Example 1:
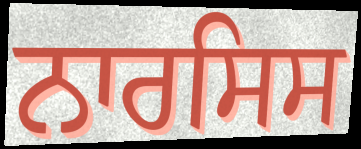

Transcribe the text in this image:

ਨਾਰਸਿਸ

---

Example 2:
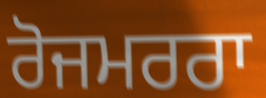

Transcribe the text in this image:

ਰੋਜਮਰਰਾ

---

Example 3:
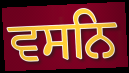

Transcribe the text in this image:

ਵਸਨਿ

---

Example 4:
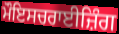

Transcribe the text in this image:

ਮੌਇਸਚਰਾਈਜ਼ਿੰਗ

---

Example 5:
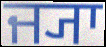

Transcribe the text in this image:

ਜ੍ਯਾ